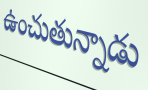
ఉంచుతున్నాడు